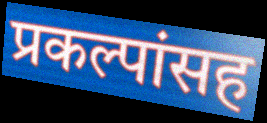
प्रकल्पांसह